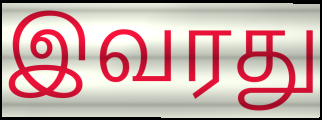
இவரது